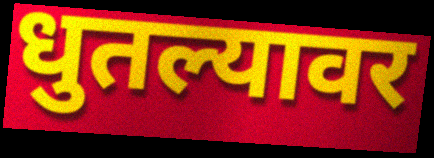
धुतल्यावर